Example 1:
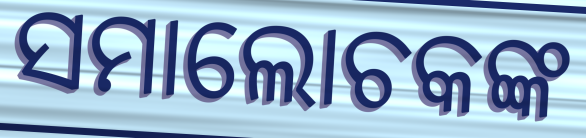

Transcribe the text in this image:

ସମାଲୋଚକଙ୍କ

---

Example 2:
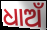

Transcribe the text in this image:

ଧାଅଁ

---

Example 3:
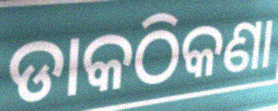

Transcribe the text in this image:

ଡାକଠିକଣା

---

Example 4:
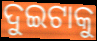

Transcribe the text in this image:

ଦୁଇଟାକୁ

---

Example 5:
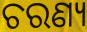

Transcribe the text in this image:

ଚରଣ୍ୟ